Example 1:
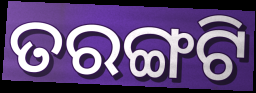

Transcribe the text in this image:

ତରଙ୍ଗଟି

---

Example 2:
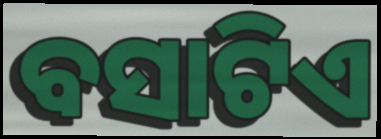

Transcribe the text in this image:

ବସାଟିଏ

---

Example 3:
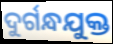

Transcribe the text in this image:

ଦୁର୍ଗନ୍ଧଯୁକ୍ତ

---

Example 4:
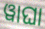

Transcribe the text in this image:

ୱାଘା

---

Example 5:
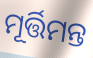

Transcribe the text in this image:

ମୂର୍ତ୍ତିମନ୍ତ